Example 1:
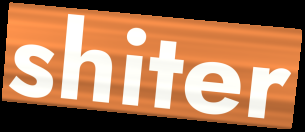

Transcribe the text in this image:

shiter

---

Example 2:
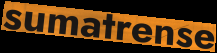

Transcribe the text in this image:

sumatrense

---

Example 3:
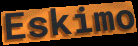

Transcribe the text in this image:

Eskimo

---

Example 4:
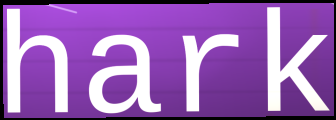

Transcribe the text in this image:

hark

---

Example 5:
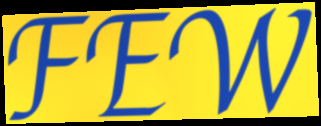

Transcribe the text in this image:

FEW